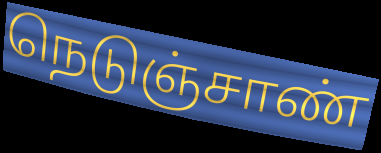
நெடுஞ்சாண்